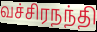
வச்சிரநந்தி